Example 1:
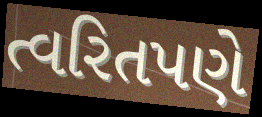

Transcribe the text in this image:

ત્વરિતપણે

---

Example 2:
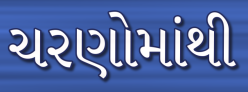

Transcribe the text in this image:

ચરણોમાંથી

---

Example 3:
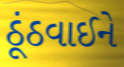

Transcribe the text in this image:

ઠૂંઠવાઈને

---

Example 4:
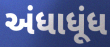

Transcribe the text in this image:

અંધાધૂંધ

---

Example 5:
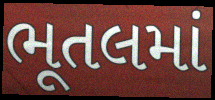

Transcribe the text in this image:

ભૂતલમાં